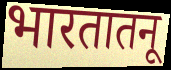
भारतातनू